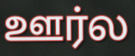
ஊர்ல